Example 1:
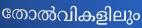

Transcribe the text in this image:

തോൽവികളിലും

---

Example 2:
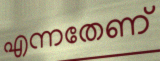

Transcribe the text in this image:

എന്നതേണ്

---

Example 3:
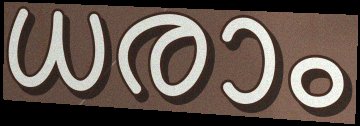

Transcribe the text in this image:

ധരാം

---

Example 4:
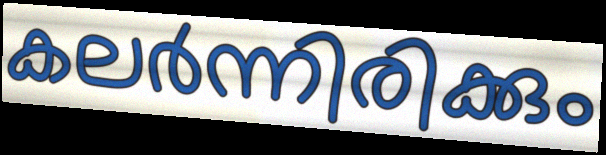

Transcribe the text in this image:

കലർന്നിരിക്കും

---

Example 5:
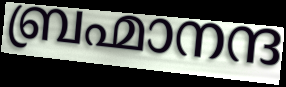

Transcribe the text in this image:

ബ്രഹ്മാനന്ദ